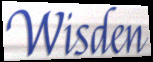
Wisden